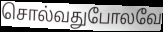
சொல்வதுபோலவே